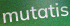
mutatis